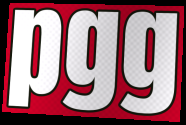
pgg